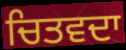
ਚਿਤਵਦਾ